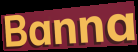
Banna